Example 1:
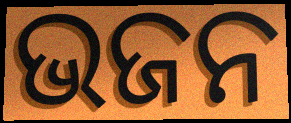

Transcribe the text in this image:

ଭଜନ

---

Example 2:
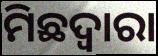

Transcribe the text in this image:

ମିଛଦ୍ଵାରା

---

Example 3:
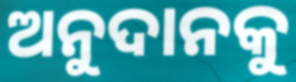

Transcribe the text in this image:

ଅନୁଦାନକୁ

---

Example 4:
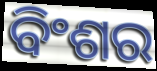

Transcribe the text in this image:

ବିଂଶର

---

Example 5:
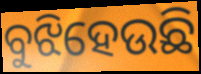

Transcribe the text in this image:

ବୁଝିହେଉଛି